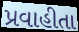
પ્રવાહીતા